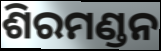
ଶିରମଣ୍ଡନ